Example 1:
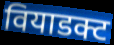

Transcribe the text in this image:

वियाडक्ट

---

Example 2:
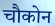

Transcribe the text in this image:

चौकोन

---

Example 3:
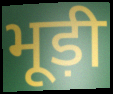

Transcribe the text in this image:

भूड़ी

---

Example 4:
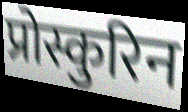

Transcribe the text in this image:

प्रोस्कुरिन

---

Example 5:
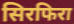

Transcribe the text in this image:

सिरफिरा